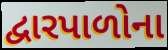
દ્વારપાળોના